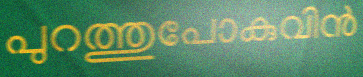
പുറത്തുപോകുവിൻ